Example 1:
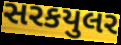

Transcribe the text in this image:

સરકયુલર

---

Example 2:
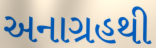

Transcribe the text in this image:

અનાગ્રહથી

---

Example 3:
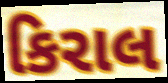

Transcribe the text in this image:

કિરાલ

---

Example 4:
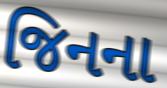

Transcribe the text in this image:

જિનના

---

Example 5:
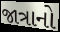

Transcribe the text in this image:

જાત્રાનો